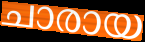
ചാരായ